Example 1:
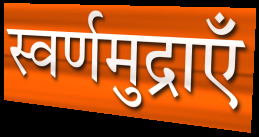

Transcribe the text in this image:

स्वर्णमुद्राएँ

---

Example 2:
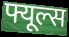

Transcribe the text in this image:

फ्यूल्स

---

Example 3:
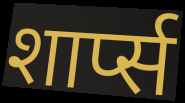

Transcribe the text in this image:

शार्प्स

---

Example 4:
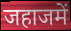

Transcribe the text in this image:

जहाजमें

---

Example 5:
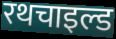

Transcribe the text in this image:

रथचाइल्ड